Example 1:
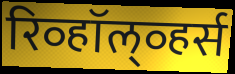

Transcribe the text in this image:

रिव्हॉल्व्हर्स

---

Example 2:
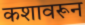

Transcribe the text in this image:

कशावरून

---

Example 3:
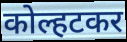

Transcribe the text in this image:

कोल्हटकर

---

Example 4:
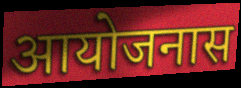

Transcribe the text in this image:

आयोजनास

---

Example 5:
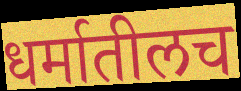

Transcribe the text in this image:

धर्मातीलच